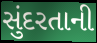
સુંદરતાની